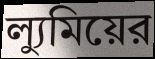
ল্যুমিয়ের